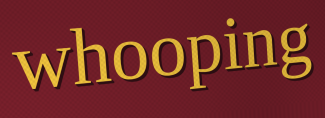
whooping